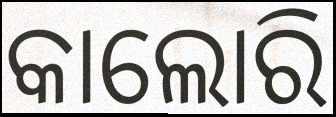
କାଲୋରି